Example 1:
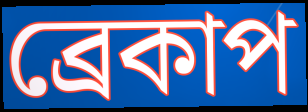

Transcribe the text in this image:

ব্রেকাপ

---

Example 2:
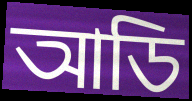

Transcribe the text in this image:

আডি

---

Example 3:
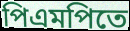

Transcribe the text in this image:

পিএমপিতে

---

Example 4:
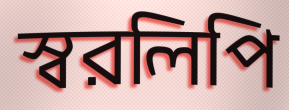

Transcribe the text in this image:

স্বরলিপি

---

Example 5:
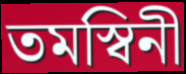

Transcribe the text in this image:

তমস্বিনী